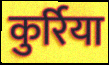
कुर्रिया